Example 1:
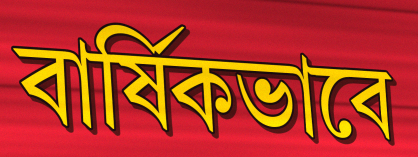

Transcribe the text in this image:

বার্ষিকভাবে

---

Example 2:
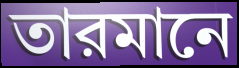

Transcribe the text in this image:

তারমানে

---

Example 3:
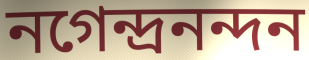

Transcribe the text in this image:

নগেন্দ্রনন্দন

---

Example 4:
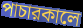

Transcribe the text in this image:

পাচারকালে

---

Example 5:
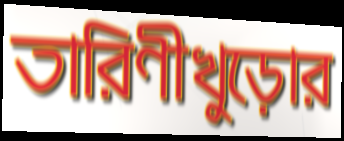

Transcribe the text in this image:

তারিণীখুড়োর